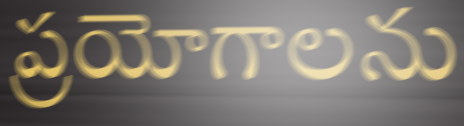
ప్రయోగాలను